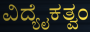
ವಿದ್ಯೈಕತ್ವಂ